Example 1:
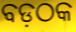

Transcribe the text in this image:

ବଡ଼ଠକ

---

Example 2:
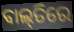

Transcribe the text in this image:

ବାଲ୍‌ତିରେ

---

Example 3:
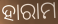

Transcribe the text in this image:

ହାରାମ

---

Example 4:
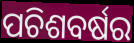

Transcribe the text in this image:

ପଚିଶବର୍ଷର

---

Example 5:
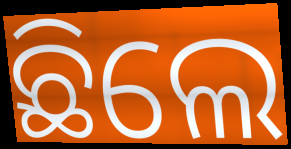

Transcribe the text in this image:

ଛିଲେ